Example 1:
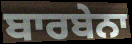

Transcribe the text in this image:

ਬਾਰਬੇਨਾ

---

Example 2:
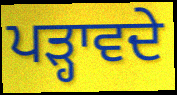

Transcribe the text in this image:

ਪੜ੍ਹਾਵਦੇ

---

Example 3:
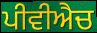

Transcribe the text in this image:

ਪੀਵੀਐਚ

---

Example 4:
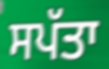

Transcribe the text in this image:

ਸਪੱਤਾ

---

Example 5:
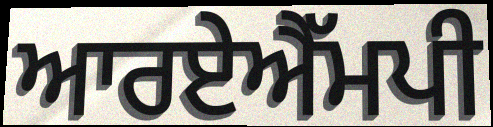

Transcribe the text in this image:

ਆਰਏਐੱਮਪੀ